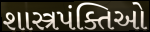
શાસ્ત્રપંક્તિઓ